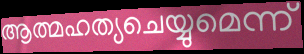
ആത്മഹത്യചെയ്യുമെന്ന്